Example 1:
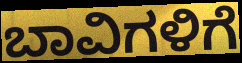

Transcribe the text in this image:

ಬಾವಿಗಳಿಗೆ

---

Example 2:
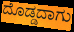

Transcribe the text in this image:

ದೊಡ್ಡದಾಗು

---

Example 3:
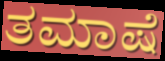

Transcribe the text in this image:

ತಮಾಷೆ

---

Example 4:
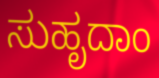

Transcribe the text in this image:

ಸುಹೃದಾಂ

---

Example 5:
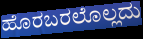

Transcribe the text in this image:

ಹೊರಬರಲೊಲ್ಲದು